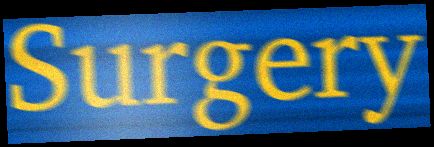
Surgery